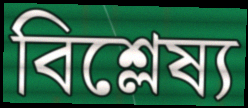
বিশ্লেষ্য